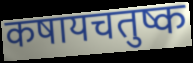
कषायचतुष्क